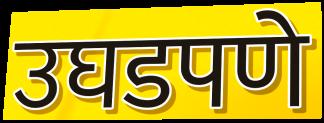
उघडपणे